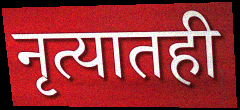
नृत्यातही